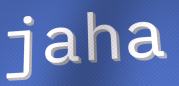
jaha